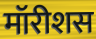
मॉरीशस